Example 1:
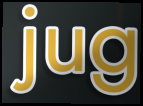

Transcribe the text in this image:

jug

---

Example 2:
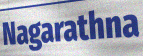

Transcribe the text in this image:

Nagarathna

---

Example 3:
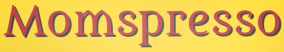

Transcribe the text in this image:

Momspresso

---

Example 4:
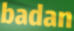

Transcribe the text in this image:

badan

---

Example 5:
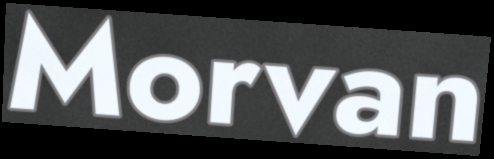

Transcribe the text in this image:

Morvan